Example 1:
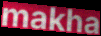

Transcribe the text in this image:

makha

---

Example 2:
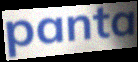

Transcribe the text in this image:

panta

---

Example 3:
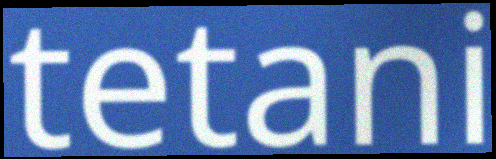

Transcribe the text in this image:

tetani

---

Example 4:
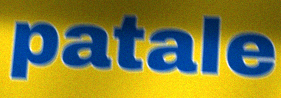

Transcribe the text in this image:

patale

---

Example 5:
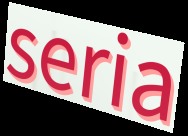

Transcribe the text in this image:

seria